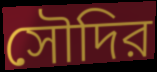
সৌদির